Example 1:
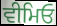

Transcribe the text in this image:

ਵੀਮਿਓ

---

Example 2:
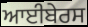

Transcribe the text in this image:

ਆਈਬੇਰਸ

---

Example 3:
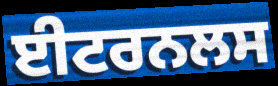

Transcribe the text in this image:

ਈਟਰਨਲਸ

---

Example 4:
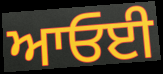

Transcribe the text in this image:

ਆਓਈ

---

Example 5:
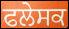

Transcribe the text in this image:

ਫਲੇਸਕ